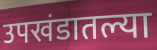
उपखंडातल्या